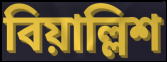
বিয়াল্লিশ